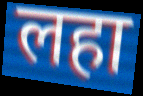
लहा